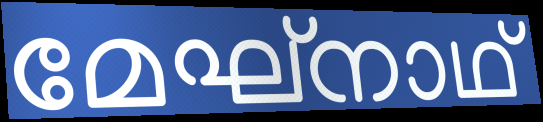
മേഘ്നാഥ്